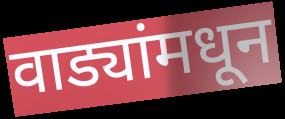
वाड्यांमधून